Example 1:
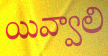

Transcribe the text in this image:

యివ్వాలి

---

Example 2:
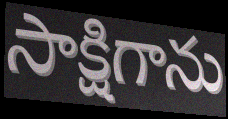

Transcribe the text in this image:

సాక్షిగాను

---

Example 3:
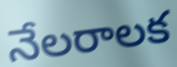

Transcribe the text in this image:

నేలరాలక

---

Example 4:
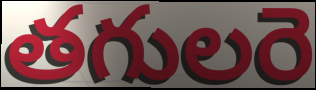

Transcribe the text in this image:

తగులరె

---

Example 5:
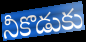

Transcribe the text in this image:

నీకొడుకు